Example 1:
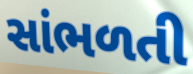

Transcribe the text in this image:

સાંભળતી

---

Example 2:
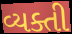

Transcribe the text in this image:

વ્યક્તી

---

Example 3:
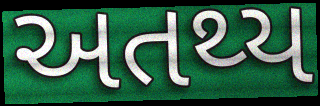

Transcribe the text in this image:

અતથ્ય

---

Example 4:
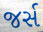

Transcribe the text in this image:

જર્સ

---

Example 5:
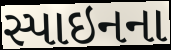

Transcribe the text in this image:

સ્પાઇનના